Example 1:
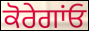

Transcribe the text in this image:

ਕੋਰੇਗਾਂਓ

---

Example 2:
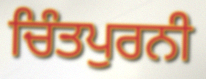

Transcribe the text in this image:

ਚਿੰਤਪੁਰਨੀ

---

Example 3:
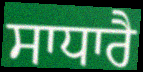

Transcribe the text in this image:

ਸਾਧਾਰੈ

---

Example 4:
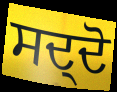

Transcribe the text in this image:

ਸਦ੍ਦੋ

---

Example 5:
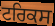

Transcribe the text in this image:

ਟਰਿਕਸ